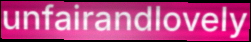
unfairandlovely